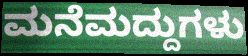
ಮನೆಮದ್ದುಗಳು